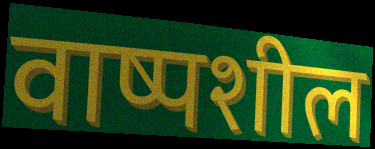
वाष्पशील